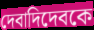
দেবাদিদেবকে